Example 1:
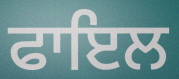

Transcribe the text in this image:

ਫਾਇਲ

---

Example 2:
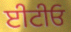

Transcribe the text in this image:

ਈਟੀਓ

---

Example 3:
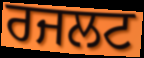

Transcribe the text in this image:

ਰਜਲਟ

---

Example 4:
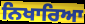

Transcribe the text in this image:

ਨਿਖਾਰਿਆ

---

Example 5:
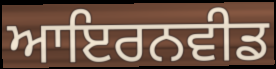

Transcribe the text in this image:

ਆਇਰਨਵੀਡ